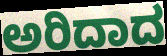
ಅರಿದಾದ